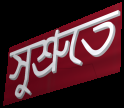
সুশ্ৰুতে